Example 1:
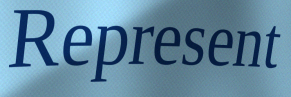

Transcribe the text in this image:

Represent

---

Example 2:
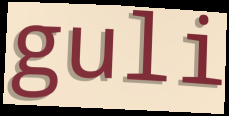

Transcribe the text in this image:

guli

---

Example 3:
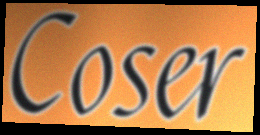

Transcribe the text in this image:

Coser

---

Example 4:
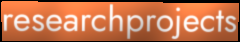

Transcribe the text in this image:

researchprojects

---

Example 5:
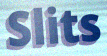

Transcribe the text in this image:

Slits